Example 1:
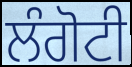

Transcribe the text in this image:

ਲੰਗੋਟੀ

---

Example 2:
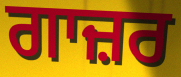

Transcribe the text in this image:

ਗਾਜ਼ਰ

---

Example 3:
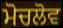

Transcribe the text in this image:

ਮੋਚਲੋਵ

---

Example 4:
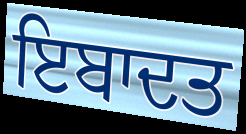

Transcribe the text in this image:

ਇਬਾਦਤ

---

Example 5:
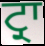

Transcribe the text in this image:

ਟ੍ਰਾ